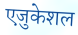
एजुकेशल